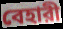
বেহারী